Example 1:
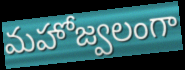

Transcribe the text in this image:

మహోజ్వలంగా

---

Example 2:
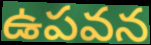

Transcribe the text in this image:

ఉపవన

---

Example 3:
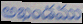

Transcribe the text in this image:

అఖండము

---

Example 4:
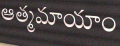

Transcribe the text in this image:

ఆత్మమాయాం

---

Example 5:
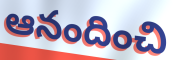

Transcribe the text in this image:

ఆనందించి